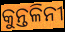
କୁନ୍ତଳିନୀ